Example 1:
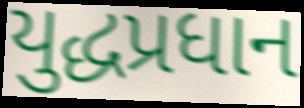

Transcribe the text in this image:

યુદ્ધપ્રધાન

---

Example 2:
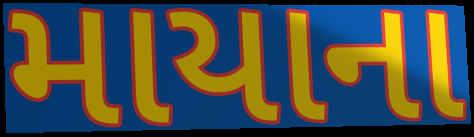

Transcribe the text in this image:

માયાના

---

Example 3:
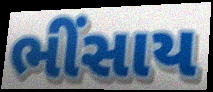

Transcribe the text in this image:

ભીંસાય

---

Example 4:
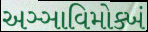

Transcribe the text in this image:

અઞ્ઞાવિમોક્ખં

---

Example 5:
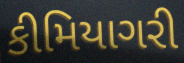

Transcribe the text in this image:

કીમિયાગરી